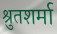
श्रुतशर्मा